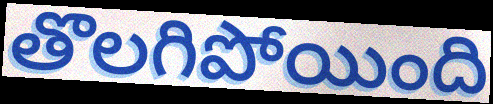
తొలగిపోయింది